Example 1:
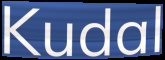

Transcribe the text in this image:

Kudal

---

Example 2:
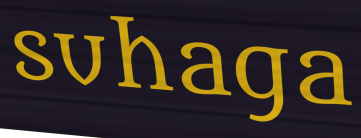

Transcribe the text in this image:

suhaga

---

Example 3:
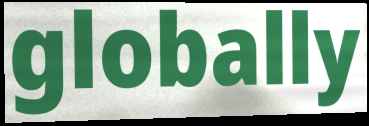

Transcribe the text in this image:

globally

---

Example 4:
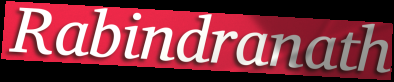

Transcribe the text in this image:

Rabindranath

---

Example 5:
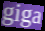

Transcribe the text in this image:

giga